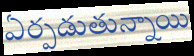
ఏర్పడుతున్నాయి